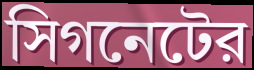
সিগনেটের